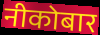
नीकोबार